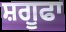
ਸ਼ਗੂਫਾ